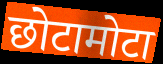
छोटामोटा